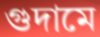
গুদামে